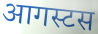
आगस्टस